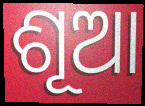
ଶୂଆ